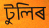
টুলিৰ